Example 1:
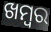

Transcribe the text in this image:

ଖମ୍ବର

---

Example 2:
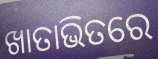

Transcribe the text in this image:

ଖାତାଭିତରେ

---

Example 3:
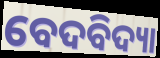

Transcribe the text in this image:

ବେଦବିଦ୍ୟା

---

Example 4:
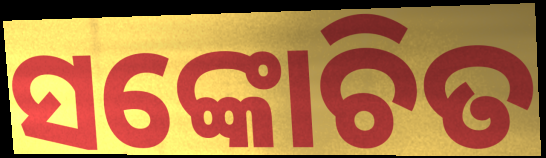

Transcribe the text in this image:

ସଙ୍କୋଚିତ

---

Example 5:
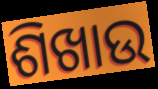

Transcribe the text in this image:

ଶିଖାଉ